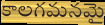
కాలగమనమై